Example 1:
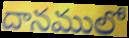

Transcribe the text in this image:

దానములో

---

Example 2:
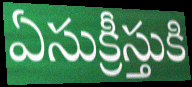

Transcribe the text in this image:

ఏసుక్రీస్తుకి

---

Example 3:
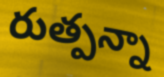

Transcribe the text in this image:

రుత్పన్నా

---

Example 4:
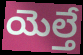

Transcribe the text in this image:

యెల్తే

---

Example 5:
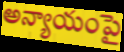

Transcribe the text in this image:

అన్యాయంపై